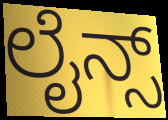
ಲೈನ್ಸ್